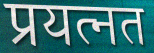
प्रयत्नत